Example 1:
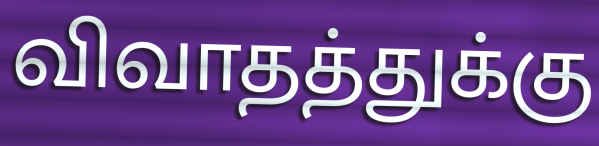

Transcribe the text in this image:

விவாதத்துக்கு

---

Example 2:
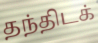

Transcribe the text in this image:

தந்திடக்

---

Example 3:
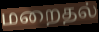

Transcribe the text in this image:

மறைதல்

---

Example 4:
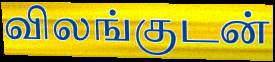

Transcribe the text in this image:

விலங்குடன்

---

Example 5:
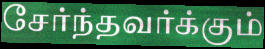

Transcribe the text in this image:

சேர்ந்தவர்க்கும்